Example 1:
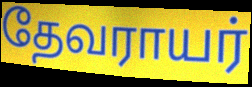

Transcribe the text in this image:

தேவராயர்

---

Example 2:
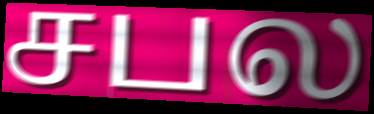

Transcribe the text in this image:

சபல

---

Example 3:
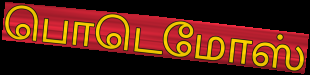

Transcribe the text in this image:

பொடெமோஸ்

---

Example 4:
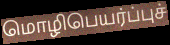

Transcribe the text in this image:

மொழிபெயர்ப்புச்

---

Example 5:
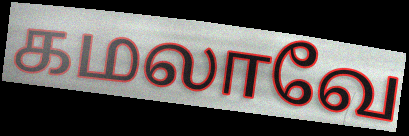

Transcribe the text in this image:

கமலாவே